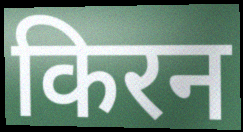
किरन